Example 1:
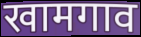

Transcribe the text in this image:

खामगाव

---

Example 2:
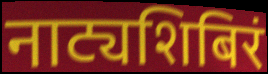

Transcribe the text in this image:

नाट्यशिबिरं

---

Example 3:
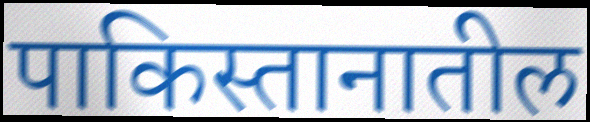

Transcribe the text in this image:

पाकिस्तानातील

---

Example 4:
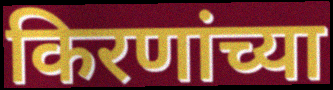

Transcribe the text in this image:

किरणांच्या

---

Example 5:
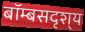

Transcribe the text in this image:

बॉम्बसदृश्य